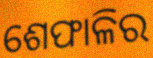
ଶେଫାଳିର